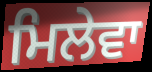
ਮਿਲੇਵਾ